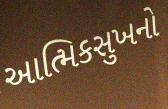
આત્મિકસુખનો